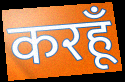
करहूँ